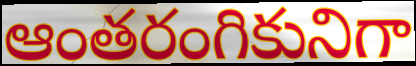
ఆంతరంగికునిగా